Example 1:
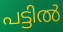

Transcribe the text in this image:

പട്ടിൽ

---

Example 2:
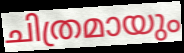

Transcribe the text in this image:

ചിത്രമായും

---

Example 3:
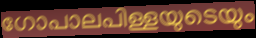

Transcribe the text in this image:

ഗോപാലപിള്ളയുടെയും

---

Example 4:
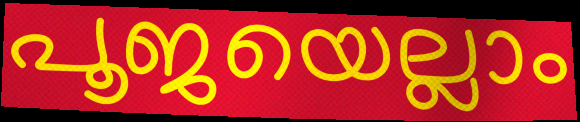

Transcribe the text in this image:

പൂജയെല്ലാം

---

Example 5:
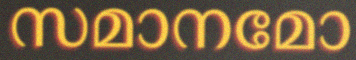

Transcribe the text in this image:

സമാനമോ